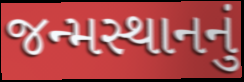
જન્મસ્થાનનું